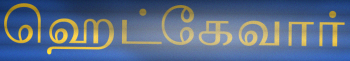
ஹெட்கேவார்